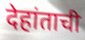
देहांताची